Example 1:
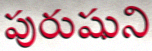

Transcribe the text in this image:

పురుషుని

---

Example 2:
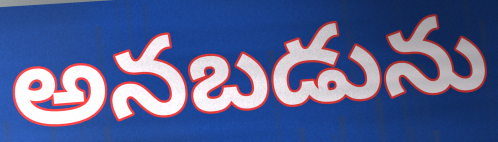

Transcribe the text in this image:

అనబడును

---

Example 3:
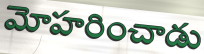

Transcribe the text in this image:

మోహరించాడు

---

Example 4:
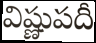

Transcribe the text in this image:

విష్ణుపదీ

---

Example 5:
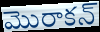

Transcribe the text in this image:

మొరాకన్